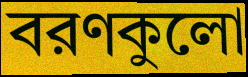
বরণকুলো